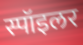
स्पॉइलर